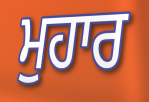
ਮੁਹਾਰ